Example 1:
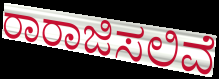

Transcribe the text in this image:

ರಾರಾಜಿಸಲಿವೆ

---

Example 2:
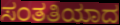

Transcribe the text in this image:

ಸಂತತಿಯಾದ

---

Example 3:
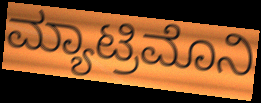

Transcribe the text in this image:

ಮ್ಯಾಟ್ರಿಮೊನಿ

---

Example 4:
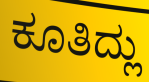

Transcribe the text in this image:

ಕೂತಿದ್ಲು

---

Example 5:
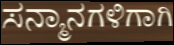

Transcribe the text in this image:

ಸನ್ಮಾನಗಳಿಗಾಗಿ